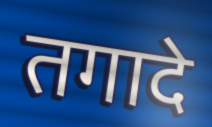
तगादे